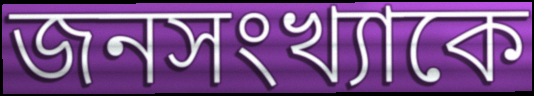
জনসংখ্যাকে